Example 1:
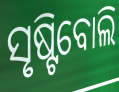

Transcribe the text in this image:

ସୃଷ୍ଟିବୋଲି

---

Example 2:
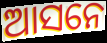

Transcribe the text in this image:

ଆସନେ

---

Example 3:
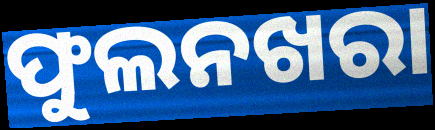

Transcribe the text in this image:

ଫୁଲନଖରା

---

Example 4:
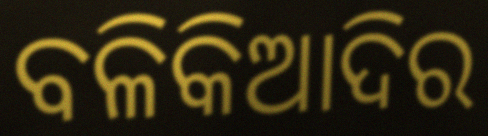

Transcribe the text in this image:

ବଳିକିଆଦିର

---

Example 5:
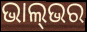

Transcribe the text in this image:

ଭାଲ୍‌ଭର